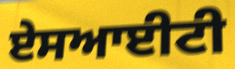
ਏਸਆਈਟੀ